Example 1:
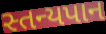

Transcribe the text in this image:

સ્તન્યપાન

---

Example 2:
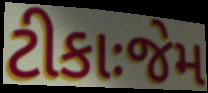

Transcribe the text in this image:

ટીકાઃજેમ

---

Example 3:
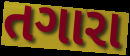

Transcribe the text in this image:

તગારા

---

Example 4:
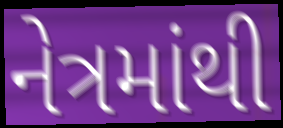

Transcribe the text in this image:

નેત્રમાંથી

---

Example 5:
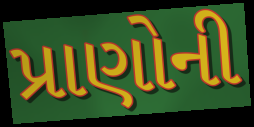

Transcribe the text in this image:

પ્રાણોની